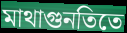
মাথাগুনতিতে